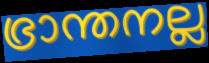
ഭ്രാന്തനല്ല